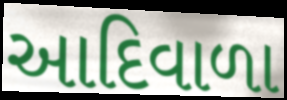
આદિવાળા